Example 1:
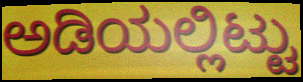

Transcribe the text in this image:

ಅಡಿಯಲ್ಲಿಟ್ಟು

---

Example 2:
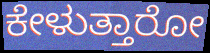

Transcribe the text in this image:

ಕೇಳುತ್ತಾರೋ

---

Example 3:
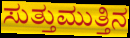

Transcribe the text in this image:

ಸುತ್ತುಮುತ್ತಿನ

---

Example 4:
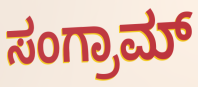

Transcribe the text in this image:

ಸಂಗ್ರಾಮ್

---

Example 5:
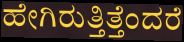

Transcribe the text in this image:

ಹೇಗಿರುತ್ತಿತ್ತೆಂದರೆ